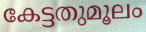
കേട്ടതുമൂലം